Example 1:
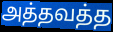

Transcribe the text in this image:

அத்தவத்த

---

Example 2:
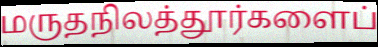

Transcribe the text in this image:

மருதநிலத்தூர்களைப்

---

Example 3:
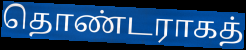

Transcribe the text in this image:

தொண்டராகத்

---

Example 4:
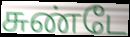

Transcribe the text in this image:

சுண்டே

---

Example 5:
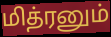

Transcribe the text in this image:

மித்ரனும்